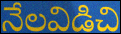
నేలవిడిచి